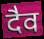
दैव